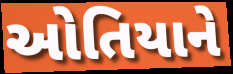
ઓતિયાને